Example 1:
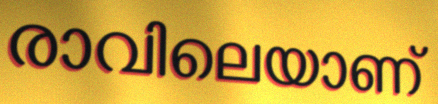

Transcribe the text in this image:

രാവിലെയാണ്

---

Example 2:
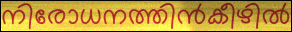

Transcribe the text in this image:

നിരോധനത്തിൻകീഴിൽ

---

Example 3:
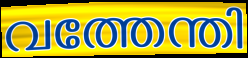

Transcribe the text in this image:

വത്തേന്തി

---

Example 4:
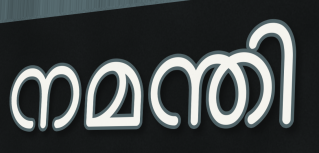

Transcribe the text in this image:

നമന്തി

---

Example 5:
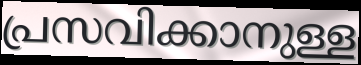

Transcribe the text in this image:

പ്രസവിക്കാനുള്ള